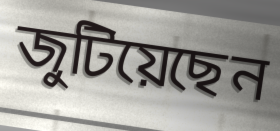
জুটিয়েছেন